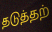
தடுத்தற்